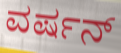
ವರ್ಷನ್